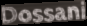
Dossani